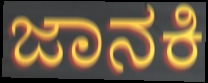
ಜಾನಕಿ